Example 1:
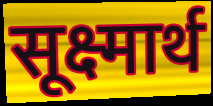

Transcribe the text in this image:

सूक्ष्मार्थ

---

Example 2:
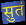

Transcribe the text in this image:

सुतं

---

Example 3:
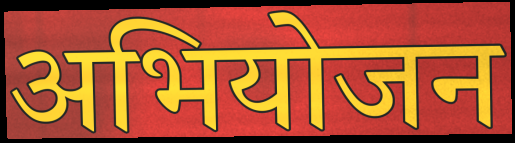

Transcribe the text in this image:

अभियोजन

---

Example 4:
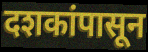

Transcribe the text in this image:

दशकांपासून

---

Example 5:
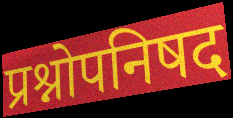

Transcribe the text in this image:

प्रश्नोपनिषद